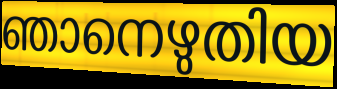
ഞാനെഴുതിയ